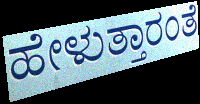
ಹೇಳುತ್ತಾರಂತೆ